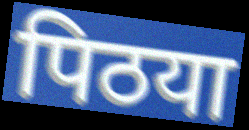
पिठया